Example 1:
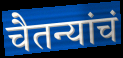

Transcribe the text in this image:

चैतन्यांचं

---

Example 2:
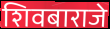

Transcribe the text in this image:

शिवबाराजे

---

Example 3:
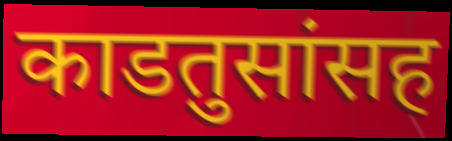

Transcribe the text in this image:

काडतुसांसह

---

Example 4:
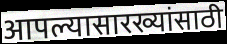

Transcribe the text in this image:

आपल्यासारख्यांसाठी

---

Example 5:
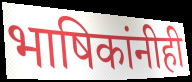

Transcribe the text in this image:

भाषिकांनीही